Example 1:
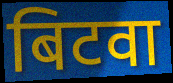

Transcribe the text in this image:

बिटवा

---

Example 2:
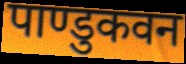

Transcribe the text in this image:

पाण्डुकवन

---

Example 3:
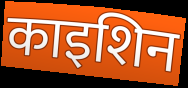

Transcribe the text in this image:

काइशिन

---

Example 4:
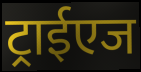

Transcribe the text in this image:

ट्राईएज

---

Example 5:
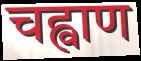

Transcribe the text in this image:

चह्वाण